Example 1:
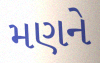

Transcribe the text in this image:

મણને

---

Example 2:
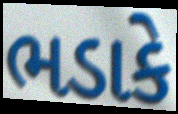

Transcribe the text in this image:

ભડાકે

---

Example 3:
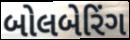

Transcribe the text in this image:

બોલબેરિંગ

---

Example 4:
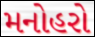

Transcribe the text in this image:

મનોહરો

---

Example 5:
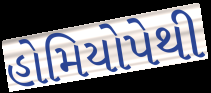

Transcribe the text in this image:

હોમિયોપેથી